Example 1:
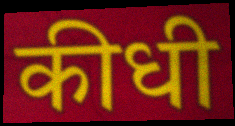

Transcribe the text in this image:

कीधी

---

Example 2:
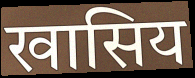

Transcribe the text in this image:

खासिय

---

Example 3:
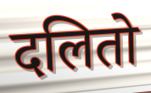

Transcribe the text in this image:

दलितो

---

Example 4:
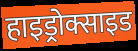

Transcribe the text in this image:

हाइड्रोक्साइड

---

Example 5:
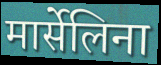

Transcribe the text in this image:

मार्सेलिना